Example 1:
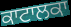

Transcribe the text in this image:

ਕਾਟਾਲਕਾ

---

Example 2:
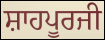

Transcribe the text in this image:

ਸ਼ਾਹਪੂਰਜੀ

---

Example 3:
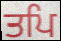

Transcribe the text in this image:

ਤਪਿ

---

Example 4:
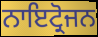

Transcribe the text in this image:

ਨਾਇਟ੍ਰੋਜਨ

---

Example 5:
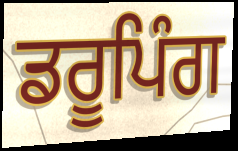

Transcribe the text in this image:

ਡਰੂਪਿੰਗ